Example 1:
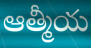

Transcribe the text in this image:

ఆత్మీయ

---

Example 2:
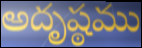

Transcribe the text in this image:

అదృష్ఠము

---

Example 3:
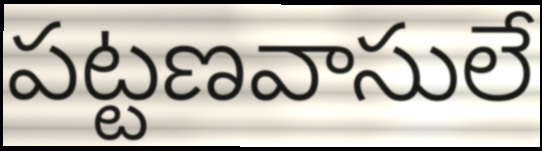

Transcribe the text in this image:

పట్టణవాసులే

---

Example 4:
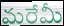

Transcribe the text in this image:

మరేమీ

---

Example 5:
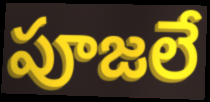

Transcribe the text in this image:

పూజలే